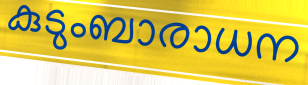
കുടുംബാരാധന